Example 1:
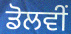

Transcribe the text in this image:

ਡੋਲਵੀਂ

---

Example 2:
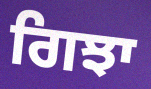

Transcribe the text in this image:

ਗਿਝਾ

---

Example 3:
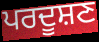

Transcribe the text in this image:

ਪਰਦੂਸ਼ਣ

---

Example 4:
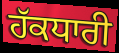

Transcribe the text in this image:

ਹੱਕਧਾਰੀ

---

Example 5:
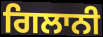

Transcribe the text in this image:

ਗਿਲਾਨੀ